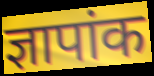
ज्ञापांक